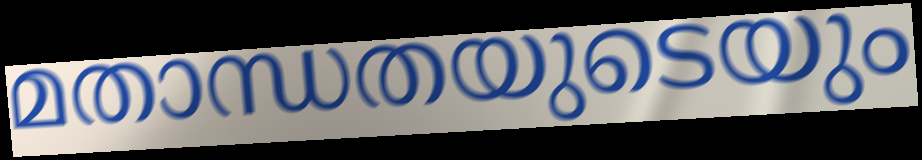
മതാന്ധതയുടെയും